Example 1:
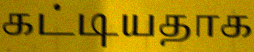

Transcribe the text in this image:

கட்டியதாக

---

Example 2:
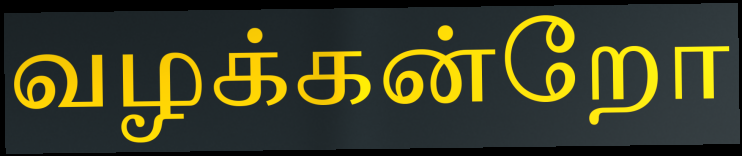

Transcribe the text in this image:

வழக்கன்றோ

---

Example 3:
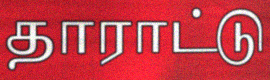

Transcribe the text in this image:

தாராட்டு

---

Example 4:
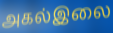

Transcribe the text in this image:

அகல்இலை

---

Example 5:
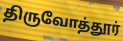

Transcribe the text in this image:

திருவோத்தூர்